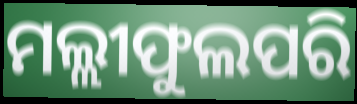
ମଲ୍ଲୀଫୁଲପରି